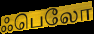
ஃபெலோ